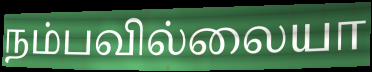
நம்பவில்லையா